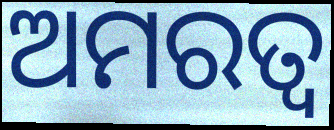
ଅମରତ୍ଵ